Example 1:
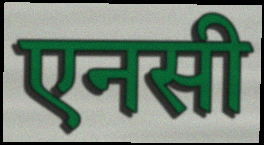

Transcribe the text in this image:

एनसी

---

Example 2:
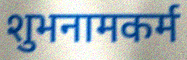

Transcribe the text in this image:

शुभनामकर्म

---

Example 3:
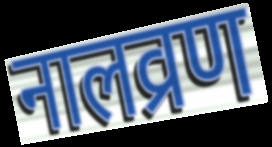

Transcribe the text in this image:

नालव्रण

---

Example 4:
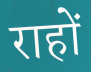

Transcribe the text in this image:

राहों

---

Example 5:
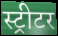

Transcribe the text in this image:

स्ट्रीटर